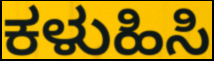
ಕಳುಹಿಸಿ